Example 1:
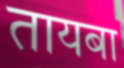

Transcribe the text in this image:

तायबा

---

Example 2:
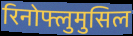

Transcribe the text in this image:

रिनोफ्लुमुसिल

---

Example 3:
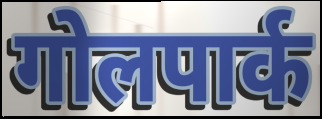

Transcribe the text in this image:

गोलपार्क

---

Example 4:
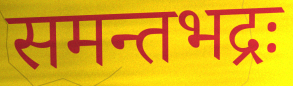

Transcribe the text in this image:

समन्तभद्रः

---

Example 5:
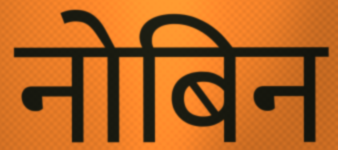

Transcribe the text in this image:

नोबिन